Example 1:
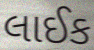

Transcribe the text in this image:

લાઈક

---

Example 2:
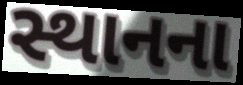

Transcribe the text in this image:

સ્થાનના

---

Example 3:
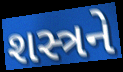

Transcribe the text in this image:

શસ્ત્રને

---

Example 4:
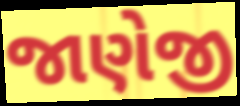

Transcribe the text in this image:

જાણેજી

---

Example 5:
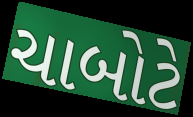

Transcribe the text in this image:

ચાબોટે